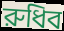
রুধিব